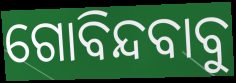
ଗୋବିନ୍ଦବାବୁ